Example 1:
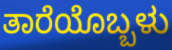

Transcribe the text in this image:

ತಾರೆಯೊಬ್ಬಳು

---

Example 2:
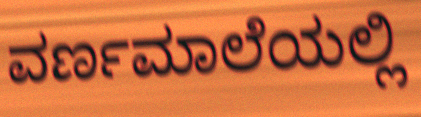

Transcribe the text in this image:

ವರ್ಣಮಾಲೆಯಲ್ಲಿ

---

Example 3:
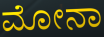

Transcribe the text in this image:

ಮೋನಾ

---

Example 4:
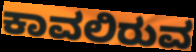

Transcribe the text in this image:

ಕಾವಲಿರುವ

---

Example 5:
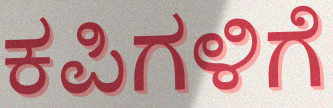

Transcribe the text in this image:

ಕಪಿಗಳಿಗೆ